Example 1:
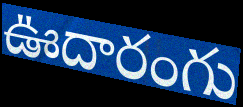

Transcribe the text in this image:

ఊదారంగు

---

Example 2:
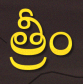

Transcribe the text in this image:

త్రీం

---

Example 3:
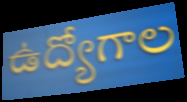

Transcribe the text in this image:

ఉద్యోగాల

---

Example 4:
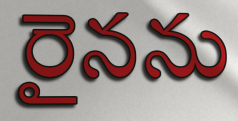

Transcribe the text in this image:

రైనను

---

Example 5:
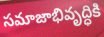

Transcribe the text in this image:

సమాజాభివృద్ధికి